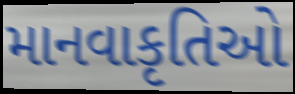
માનવાકૃતિઓ